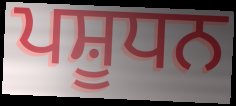
ਪਸ਼ੂਧਨ